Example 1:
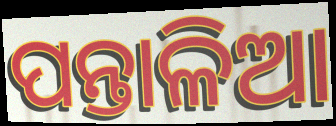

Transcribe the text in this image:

ପନ୍ତାଳିଆ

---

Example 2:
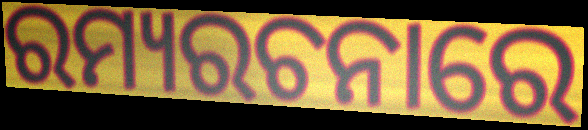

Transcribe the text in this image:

ରମ୍ୟରଚନାରେ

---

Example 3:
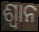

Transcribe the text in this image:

ଶ୍ୱାନ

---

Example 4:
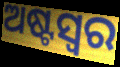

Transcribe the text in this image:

ଅଷ୍ଟସ୍ୱର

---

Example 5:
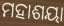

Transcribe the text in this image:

ମହାଶୟା